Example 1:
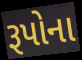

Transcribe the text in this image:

રૂપોના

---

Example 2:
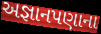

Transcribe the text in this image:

અજ્ઞાનપણાના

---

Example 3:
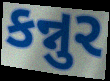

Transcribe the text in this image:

કન્નુર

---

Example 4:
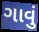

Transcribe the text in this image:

ગાવું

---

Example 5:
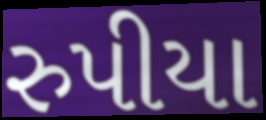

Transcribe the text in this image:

રુપીયા